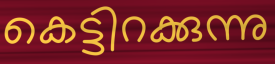
കെട്ടിറക്കുന്നു